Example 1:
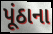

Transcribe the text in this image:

પૂંઠાના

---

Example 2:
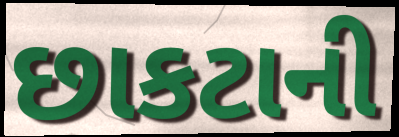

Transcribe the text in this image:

છાકટાની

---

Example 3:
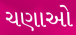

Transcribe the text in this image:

ચણાઓ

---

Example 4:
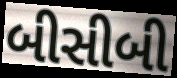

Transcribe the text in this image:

બીસીબી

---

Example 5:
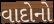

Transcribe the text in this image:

વાદોનો